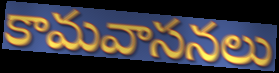
కామవాసనలు